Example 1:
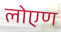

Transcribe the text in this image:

लोएण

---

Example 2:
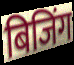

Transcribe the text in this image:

बिजिंग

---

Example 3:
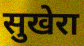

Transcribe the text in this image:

सुखेरा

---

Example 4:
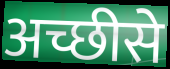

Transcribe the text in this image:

अच्छीसे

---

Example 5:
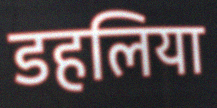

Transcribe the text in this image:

डहलिया